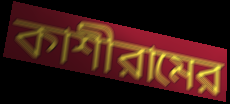
কাশীরামের